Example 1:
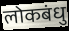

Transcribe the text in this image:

लोकबंधु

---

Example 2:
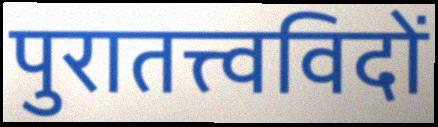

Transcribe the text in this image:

पुरातत्त्वविदों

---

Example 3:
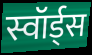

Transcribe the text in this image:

स्‍वॉर्ड्स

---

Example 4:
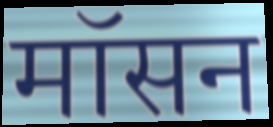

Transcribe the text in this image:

मॉसन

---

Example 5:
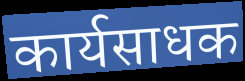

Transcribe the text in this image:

कार्यसाधक